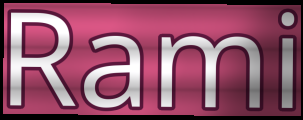
Rami